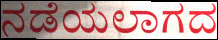
ನಡೆಯಲಾಗದ